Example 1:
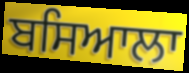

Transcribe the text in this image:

ਬਸਿਆਲਾ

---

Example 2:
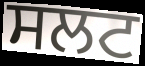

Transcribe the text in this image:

ਸਲਟ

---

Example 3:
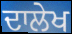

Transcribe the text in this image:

ਦਾਲੇਖ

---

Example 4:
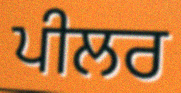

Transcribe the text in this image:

ਪੀਲਰ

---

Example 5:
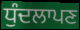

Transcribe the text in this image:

ਧੁੰਦਲਾਪਣ